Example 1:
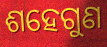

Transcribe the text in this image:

ଶହେଗୁଣ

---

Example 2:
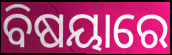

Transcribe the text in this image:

ବିଷୟାରେ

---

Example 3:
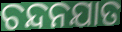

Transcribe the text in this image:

ଚନ୍ଦନଯାତ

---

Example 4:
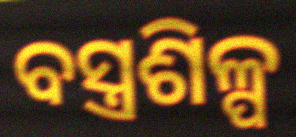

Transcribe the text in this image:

ବସ୍ତ୍ରଶିଳ୍ପ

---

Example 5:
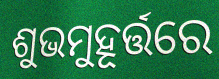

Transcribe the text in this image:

ଶୁଭମୁହୂର୍ତ୍ତରେ